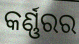
କର୍ଣ୍ଣରର